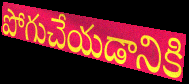
పోగుచేయడానికి